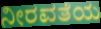
ನೀರವತೆಯ